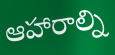
ఆహారాల్ని